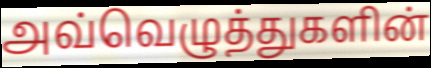
அவ்வெழுத்துகளின்